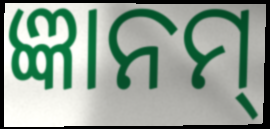
ଜ୍ଞାନମ୍